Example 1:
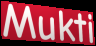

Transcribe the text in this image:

Mukti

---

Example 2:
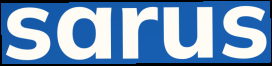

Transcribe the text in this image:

sarus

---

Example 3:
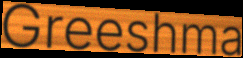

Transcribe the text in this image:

Greeshma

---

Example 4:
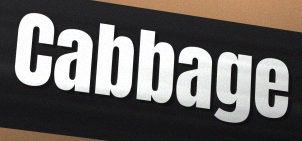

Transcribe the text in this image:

Cabbage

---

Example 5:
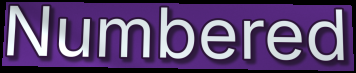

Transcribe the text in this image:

Numbered